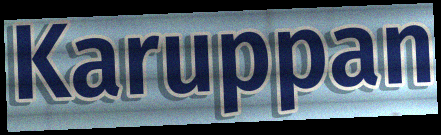
Karuppan